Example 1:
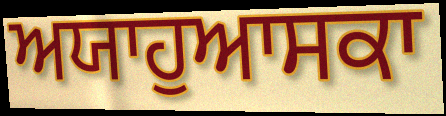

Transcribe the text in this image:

ਅਯਾਹੁਆਸਕਾ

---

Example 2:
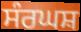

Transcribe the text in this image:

ਸੰਰਘਸ਼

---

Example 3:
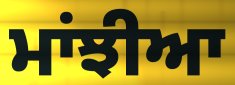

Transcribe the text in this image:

ਮਾਂਝੀਆ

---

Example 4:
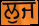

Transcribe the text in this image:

ਲੁਜ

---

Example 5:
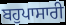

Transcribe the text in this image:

ਬਹੁਪਾਸਾਰੀ